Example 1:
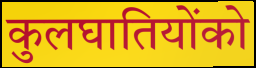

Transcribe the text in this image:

कुलघातियोंको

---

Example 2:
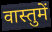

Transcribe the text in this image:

वास्तुमें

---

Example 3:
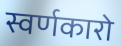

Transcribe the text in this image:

स्वर्णकारो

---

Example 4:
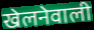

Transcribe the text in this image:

खेलनेवाली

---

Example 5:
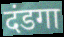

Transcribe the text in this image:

दंडगा